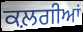
ਕਲ਼ਗੀਆਂ